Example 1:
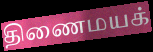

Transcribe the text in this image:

திணைமயக்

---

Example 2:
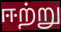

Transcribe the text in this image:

ஈற்று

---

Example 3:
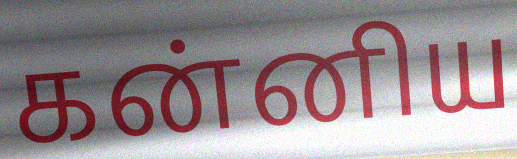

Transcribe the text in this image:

கன்னிய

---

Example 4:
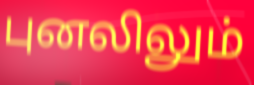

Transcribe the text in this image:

புனலிலும்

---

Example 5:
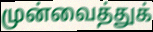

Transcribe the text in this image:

முன்வைத்துக்